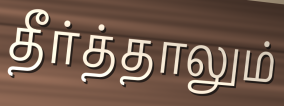
தீர்த்தாலும்